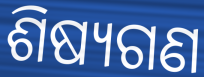
ଶିଷ୍ୟଗଣ